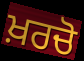
ਖ਼ਰਚੋ